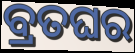
ବ୍ରତଘର